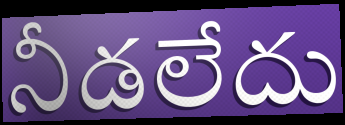
నీడలేదు